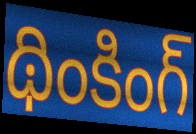
థింకింగ్